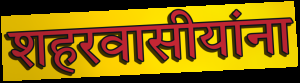
शहरवासीयांना